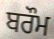
ਬਰੌਮ